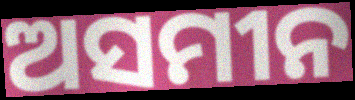
ଅସମୀନ